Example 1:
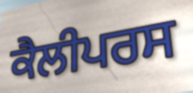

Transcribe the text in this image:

ਕੈਲੀਪਰਸ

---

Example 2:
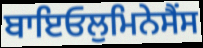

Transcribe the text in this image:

ਬਾਇਓਲੁਮਿਨੇਸੈਂਸ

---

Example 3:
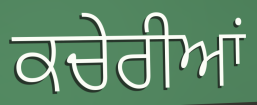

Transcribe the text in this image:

ਕਚੇਰੀਆਂ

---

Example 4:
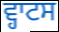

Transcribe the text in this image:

ਵ੍ਹਾਟਸ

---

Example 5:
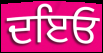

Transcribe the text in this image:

ਦਇਓ